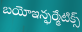
బయోఇన్ఫర్మేటిక్స్